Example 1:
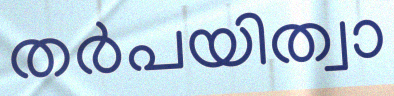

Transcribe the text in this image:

തർപയിത്വാ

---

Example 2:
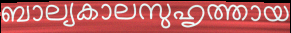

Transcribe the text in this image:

ബാല്യകാലസുഹൃത്തായ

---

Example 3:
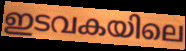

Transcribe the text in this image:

ഇടവകയിലെ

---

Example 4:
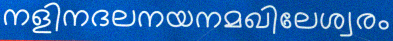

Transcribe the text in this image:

നളിനദലനയനമഖിലേശ്വരം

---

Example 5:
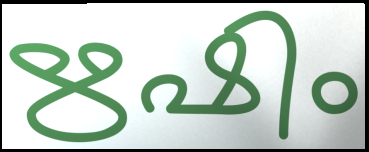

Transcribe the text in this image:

ഋഷിം